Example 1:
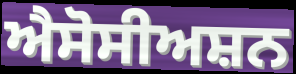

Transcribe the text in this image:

ਐਸੋਸੀਅਸ਼ਨ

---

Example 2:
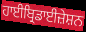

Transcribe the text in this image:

ਹਾਈਬ੍ਰਿਡਾਈਜ਼ੇਸ਼ਨ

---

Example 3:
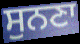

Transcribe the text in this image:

ਸੁਨਣਾ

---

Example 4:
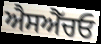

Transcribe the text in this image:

ਐਸਐੱਚਓ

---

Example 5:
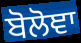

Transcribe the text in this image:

ਬੋਲੋਞਾ